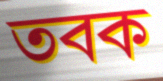
তবক